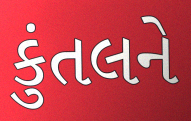
કુંતલને